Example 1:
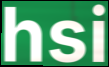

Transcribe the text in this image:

hsi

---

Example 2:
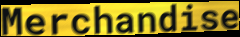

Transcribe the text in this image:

Merchandise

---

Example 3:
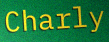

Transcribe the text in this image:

Charly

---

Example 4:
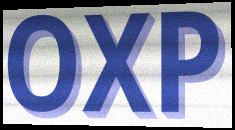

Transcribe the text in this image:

OXP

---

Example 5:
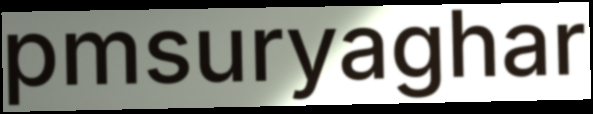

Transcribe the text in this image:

pmsuryaghar